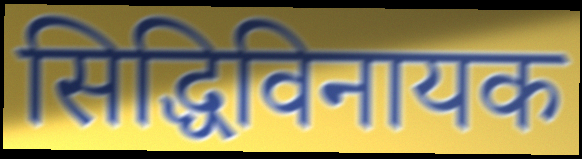
सिद्धिविनायक